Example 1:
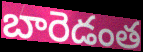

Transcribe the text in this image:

బారెడంత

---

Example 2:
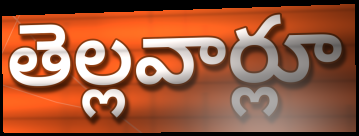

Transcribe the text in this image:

తెల్లవార్లూ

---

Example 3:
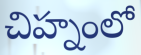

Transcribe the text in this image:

చిహ్నంలో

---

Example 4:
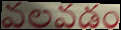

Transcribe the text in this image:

వలవడం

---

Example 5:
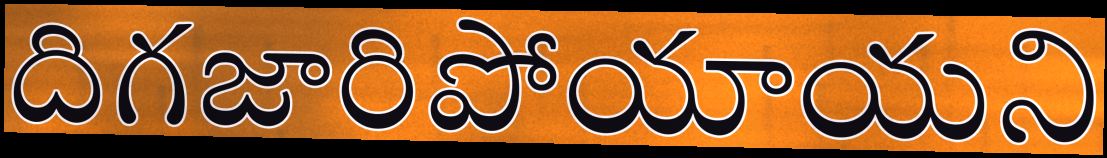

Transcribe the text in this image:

దిగజారిపోయాయని